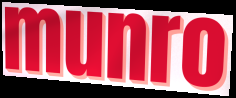
munro